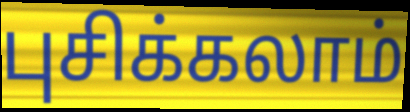
புசிக்கலாம்